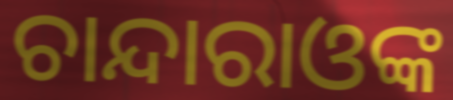
ଚାନ୍ଦାରାଓଙ୍କ